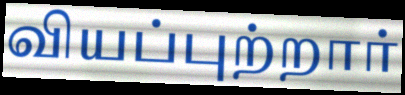
வியப்புற்றார்